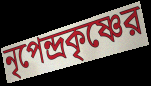
নৃপেন্দ্রকৃষ্ণের